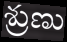
శ్రుణు